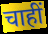
चाहीं